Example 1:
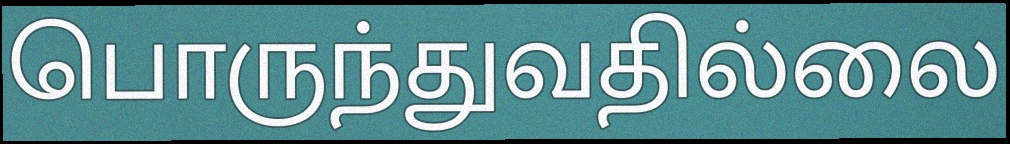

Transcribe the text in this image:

பொருந்துவதில்லை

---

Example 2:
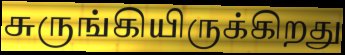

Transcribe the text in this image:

சுருங்கியிருக்கிறது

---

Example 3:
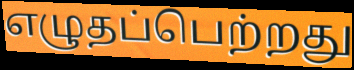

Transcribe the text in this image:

எழுதப்பெற்றது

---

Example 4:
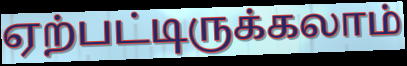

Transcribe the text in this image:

ஏற்பட்டிருக்கலாம்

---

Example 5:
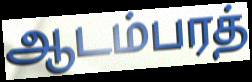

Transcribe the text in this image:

ஆடம்பரத்